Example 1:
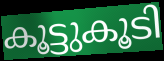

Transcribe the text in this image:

കൂട്ടുകൂടി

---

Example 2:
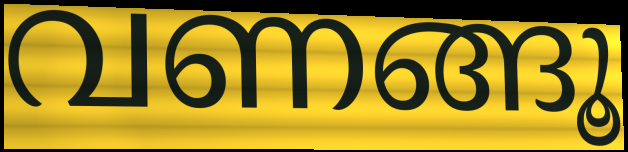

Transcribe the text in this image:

വണങ്ങൂ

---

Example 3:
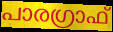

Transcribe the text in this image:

പാരഗ്രാഫ്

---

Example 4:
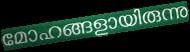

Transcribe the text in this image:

മോഹങ്ങളായിരുന്നു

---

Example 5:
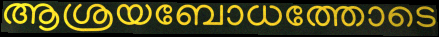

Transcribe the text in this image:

ആശ്രയബോധത്തോടെ